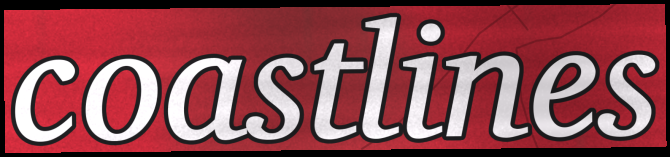
coastlines